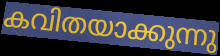
കവിതയാക്കുന്നു